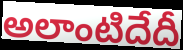
అలాంటిదేదీ